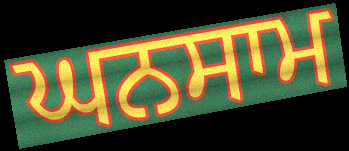
ਘਨਸਾਮ